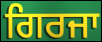
ਗਿਰਜਾ